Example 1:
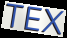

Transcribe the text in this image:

TEX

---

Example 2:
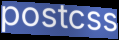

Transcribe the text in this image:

postcss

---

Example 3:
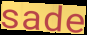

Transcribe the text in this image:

sade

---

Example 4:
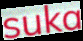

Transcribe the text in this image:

suka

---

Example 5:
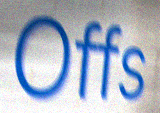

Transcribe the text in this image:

Offs